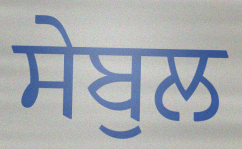
ਸੇਬੁਲ